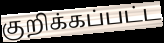
குறிக்கப்பட்ட